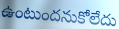
ఉంటుందనుకోలేదు